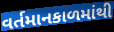
વર્તમાનકાળમાંથી